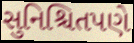
સુનિશ્ચિતપણે